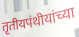
तृतीयपंथीयांच्या